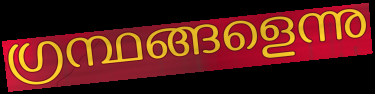
ഗ്രന്ഥങ്ങളെന്നു